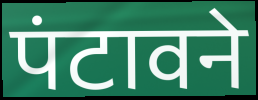
पंटावने